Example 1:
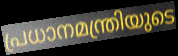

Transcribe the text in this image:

പ്രധാനമന്ത്രിയുടെ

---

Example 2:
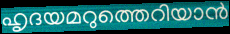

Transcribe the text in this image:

ഹൃദയമറുത്തെറിയാൻ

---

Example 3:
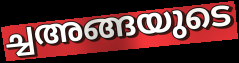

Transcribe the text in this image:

ച്ചഅങ്ങയുടെ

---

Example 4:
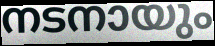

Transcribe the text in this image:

നടനായും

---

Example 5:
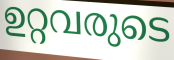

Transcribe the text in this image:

ഉറ്റവരുടെ